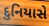
દુનિયાસે